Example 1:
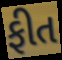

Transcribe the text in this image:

ફીત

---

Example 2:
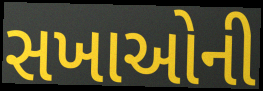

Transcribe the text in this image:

સખાઓની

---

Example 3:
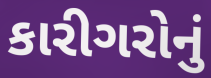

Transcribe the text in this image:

કારીગરોનું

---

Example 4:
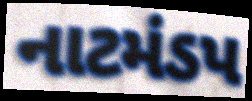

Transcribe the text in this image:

નાટમંડપ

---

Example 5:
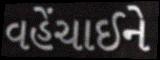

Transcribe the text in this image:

વહેંચાઈને